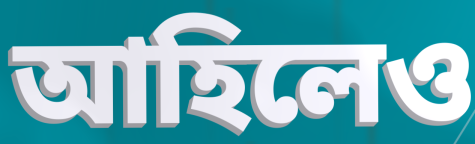
আহিলেও